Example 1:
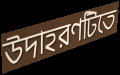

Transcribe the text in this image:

উদাহরণটিতে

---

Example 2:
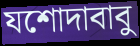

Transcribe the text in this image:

যশোদাবাবু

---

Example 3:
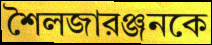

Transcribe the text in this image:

শৈলজারঞ্জনকে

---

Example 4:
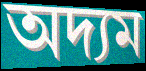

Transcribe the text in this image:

অদ্যম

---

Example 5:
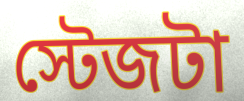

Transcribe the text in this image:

স্টেজটা